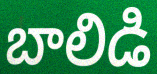
బాలిడి